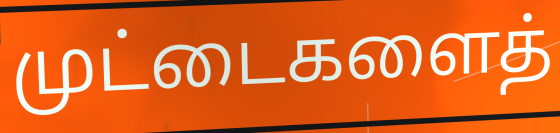
முட்டைகளைத்